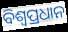
ବିଶ୍ୱପ୍ରଧାନ